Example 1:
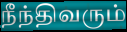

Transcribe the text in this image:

நீந்திவரும்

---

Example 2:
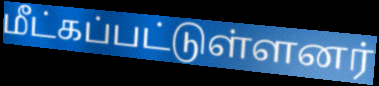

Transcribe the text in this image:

மீட்கப்பட்டுள்ளனர்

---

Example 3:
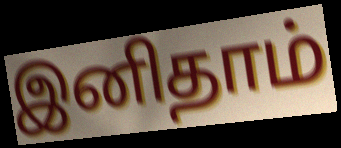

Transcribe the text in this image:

இனிதாம்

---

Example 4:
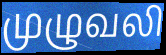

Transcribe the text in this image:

முழுவலி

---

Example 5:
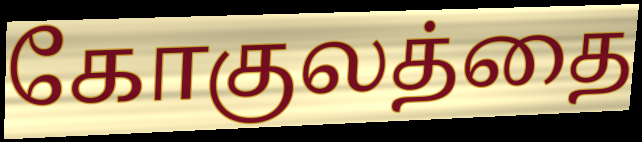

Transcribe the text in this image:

கோகுலத்தை